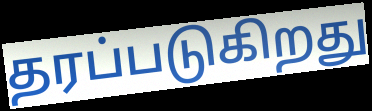
தரப்படுகிறது